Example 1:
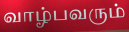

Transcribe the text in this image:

வாழ்பவரும்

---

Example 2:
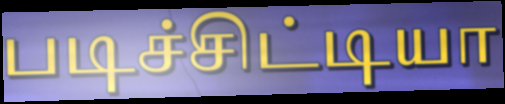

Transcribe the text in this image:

படிச்சிட்டியா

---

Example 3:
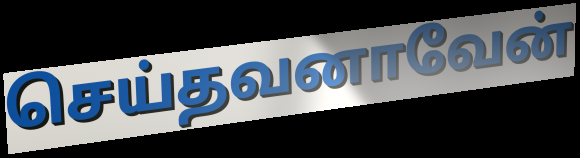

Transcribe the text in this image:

செய்தவனாவேன்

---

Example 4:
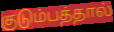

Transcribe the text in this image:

குடும்பத்தால்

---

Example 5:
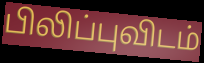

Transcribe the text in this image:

பிலிப்புவிடம்